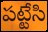
పట్టేసి